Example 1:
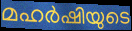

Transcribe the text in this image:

മഹർഷിയുടെ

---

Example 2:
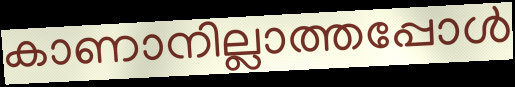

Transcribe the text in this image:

കാണാനില്ലാത്തപ്പോൾ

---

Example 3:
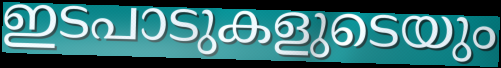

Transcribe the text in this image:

ഇടപാടുകളുടെയും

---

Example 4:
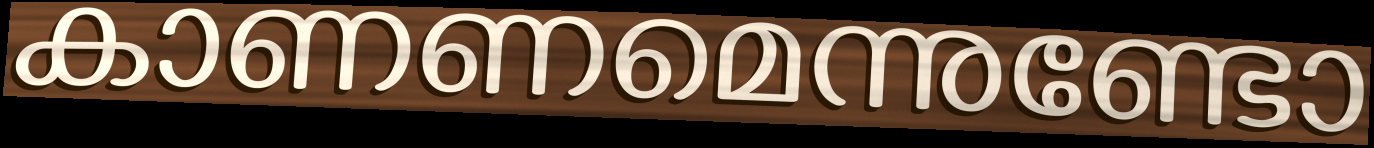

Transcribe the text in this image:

കാണണമെന്നുണ്ടോ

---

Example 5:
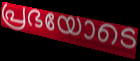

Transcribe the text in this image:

പ്രഭയോടെ